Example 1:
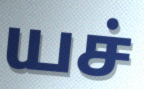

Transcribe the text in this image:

யச்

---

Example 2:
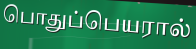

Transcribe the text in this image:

பொதுப்பெயரால்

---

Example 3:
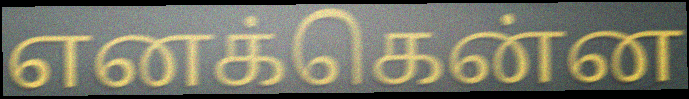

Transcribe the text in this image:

எனக்கென்ன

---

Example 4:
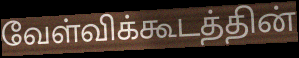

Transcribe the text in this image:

வேள்விக்கூடத்தின்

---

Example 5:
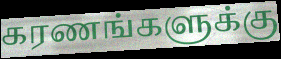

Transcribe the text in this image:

கரணங்களுக்கு